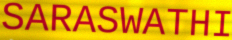
SARASWATHI